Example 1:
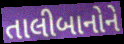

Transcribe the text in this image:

તાલીબાનોને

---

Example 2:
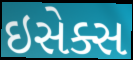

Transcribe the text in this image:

ઇસેક્સ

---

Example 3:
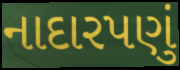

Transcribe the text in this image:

નાદારપણું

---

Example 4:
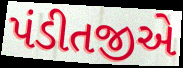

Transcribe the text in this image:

પંડીતજીએ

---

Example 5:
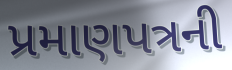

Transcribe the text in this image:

પ્રમાણપત્રની